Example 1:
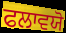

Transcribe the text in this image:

ਫਲਾਵਯੋ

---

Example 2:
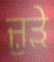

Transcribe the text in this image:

ਜ਼ੁੜੇ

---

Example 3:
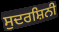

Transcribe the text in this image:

ਸੁਦਰਸ਼ਿਨੀ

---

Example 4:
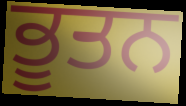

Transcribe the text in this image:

ਭੂਤਨ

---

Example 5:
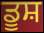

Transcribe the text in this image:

ਡੂਸ਼